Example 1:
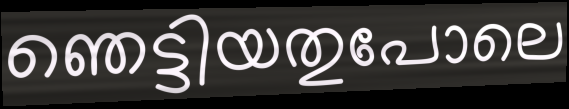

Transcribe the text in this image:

ഞെട്ടിയതുപോലെ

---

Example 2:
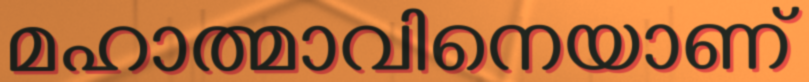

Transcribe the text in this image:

മഹാത്മാവിനെയാണ്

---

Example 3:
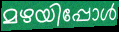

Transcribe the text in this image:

മഴയിപ്പോൾ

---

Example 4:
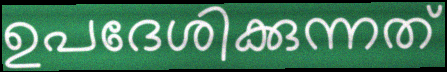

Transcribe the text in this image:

ഉപദേശിക്കുന്നത്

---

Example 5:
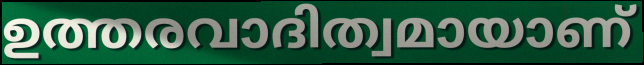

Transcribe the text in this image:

ഉത്തരവാദിത്വമായാണ്